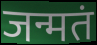
जन्मतं